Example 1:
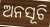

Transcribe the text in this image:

ଅନସୂଚି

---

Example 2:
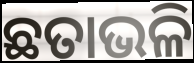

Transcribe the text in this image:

ଛତାଭଳି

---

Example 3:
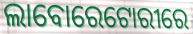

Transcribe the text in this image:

ଲାବୋରେଟୋରୀରେ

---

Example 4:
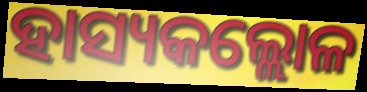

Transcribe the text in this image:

ହାସ୍ୟକଲ୍ଲୋଳ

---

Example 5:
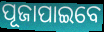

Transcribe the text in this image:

ପୂଜାପାଇବେ